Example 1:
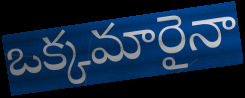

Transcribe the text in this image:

ఒక్కమారైనా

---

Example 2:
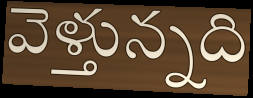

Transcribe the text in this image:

వెళ్తున్నది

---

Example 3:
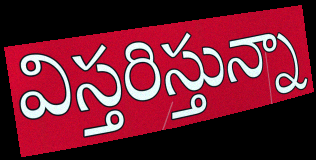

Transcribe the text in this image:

విస్తరిస్తున్నా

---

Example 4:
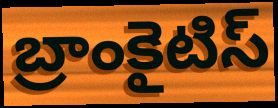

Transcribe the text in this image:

బ్రాంకైటిస్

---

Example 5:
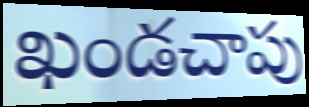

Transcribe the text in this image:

ఖండచాపు